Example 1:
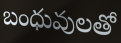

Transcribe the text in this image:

బంధువులతో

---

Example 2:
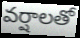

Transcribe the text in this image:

వర్షాలతో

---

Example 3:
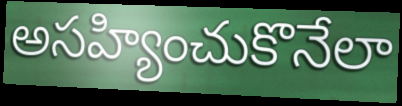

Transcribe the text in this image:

అసహ్యించుకొనేలా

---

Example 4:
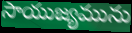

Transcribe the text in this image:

సాయుజ్యమును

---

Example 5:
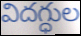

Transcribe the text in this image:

విదగ్ధుల